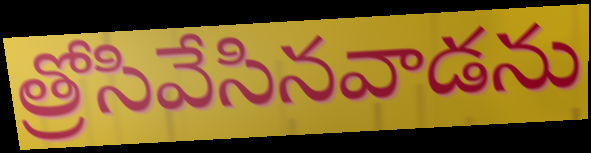
త్రోసివేసినవాడను